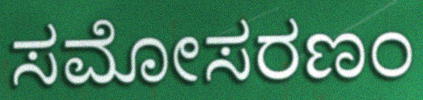
ಸಮೋಸರಣಂ